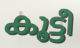
കൂട്ടീ